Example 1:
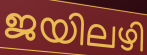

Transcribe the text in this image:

ജയിലഴി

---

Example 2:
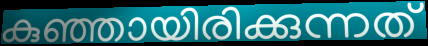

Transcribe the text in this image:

കുഞ്ഞായിരിക്കുന്നത്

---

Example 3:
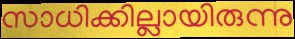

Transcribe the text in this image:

സാധിക്കില്ലായിരുന്നു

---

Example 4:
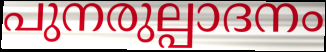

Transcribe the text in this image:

പുനരുല്പാദനം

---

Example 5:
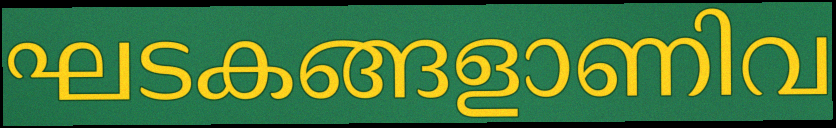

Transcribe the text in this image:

ഘടകങ്ങളാണിവ